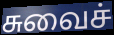
சுவைச்